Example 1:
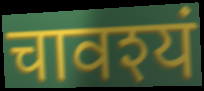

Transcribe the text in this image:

चावश्यं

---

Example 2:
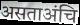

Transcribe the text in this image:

असताअंचि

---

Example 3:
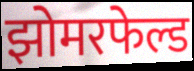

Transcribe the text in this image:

झोमरफेल्ड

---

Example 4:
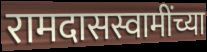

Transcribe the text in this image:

रामदासस्वामींच्या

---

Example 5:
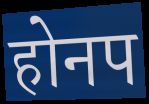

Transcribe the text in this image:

होनप